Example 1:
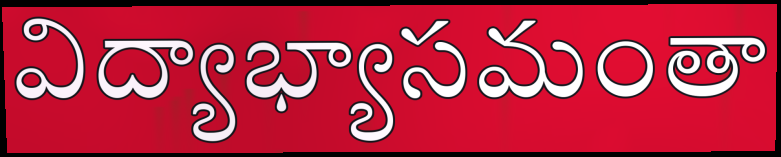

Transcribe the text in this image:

విద్యాభ్యాసమంతా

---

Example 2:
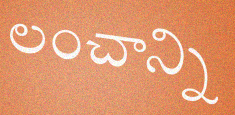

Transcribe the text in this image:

లంచాన్ని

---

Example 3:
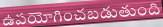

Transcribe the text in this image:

ఉపయోగించబడుతుంది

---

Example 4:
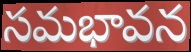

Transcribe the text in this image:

సమభావన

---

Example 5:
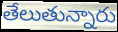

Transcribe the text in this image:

తేలుతున్నారు